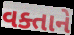
વક્તાને